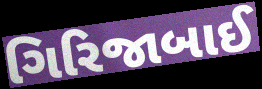
ગિરિજાબાઈ